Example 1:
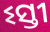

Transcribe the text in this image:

ଽସ୍ତୀ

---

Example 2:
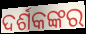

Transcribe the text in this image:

ଦର୍ଶକଙ୍କର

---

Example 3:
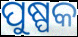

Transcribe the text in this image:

ପୁଷ୍ପକ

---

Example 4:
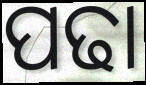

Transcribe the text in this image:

ପଢା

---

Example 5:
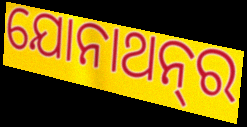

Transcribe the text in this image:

ଯୋନାଥନ୍‍ର